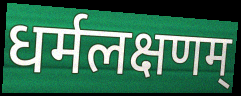
धर्मलक्षणम्